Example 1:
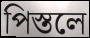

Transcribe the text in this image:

পিস্তলে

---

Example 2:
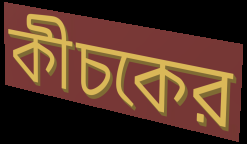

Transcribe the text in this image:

কীচকের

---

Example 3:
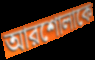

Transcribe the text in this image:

আরশোলাকে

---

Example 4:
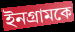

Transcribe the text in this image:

ইনগ্রামকে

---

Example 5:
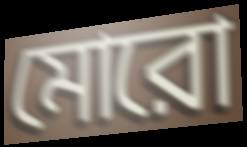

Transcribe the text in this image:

মোরো